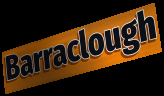
Barraclough